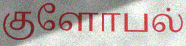
குளோபல்